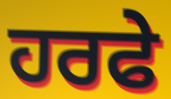
ਹਰਫੇ